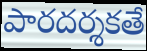
పారదర్శకతే